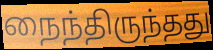
நைந்திருந்தது